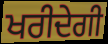
ਖਰੀਦੇਗੀ